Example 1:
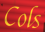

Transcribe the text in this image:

Cols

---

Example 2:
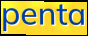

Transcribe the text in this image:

penta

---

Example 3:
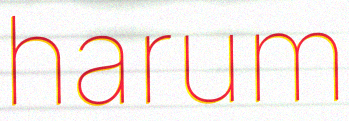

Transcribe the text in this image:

harum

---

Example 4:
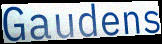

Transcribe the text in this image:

Gaudens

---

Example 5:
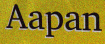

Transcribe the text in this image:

Aapan